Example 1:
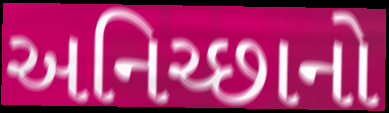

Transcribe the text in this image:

અનિચ્છાનો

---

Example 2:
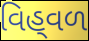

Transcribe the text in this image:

વિહ્‌વળ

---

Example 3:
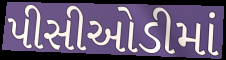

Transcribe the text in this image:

પીસીઓડીમાં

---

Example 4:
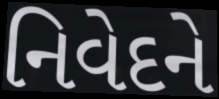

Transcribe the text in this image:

નિવેદને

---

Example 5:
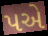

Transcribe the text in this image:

પએ